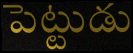
పెట్టుడు